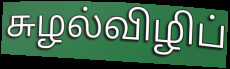
சுழல்விழிப்